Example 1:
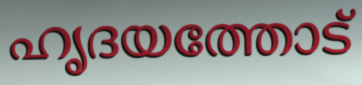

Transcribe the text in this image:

ഹൃദയത്തോട്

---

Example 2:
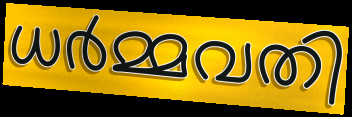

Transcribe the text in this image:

ധർമ്മവതി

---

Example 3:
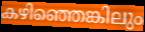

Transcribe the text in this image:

കഴിഞ്ഞെങ്കിലും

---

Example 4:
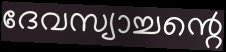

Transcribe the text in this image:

ദേവസ്യാച്ചന്റെ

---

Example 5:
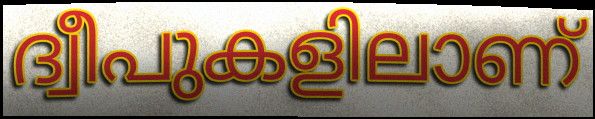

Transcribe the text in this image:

ദ്വീപുകളിലാണ്